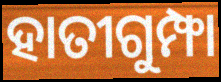
ହାତୀଗୁମ୍ଫା